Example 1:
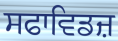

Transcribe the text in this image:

ਸਫਾਵਿਡਜ਼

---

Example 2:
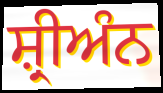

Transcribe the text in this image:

ਸ਼੍ਰੀਅੰਨ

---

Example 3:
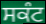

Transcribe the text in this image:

ਸਕੰਟ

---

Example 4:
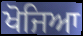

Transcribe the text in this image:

ਖੋਜਿਆ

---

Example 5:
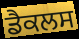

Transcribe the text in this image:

ਡੈਕਲਸ